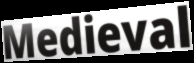
Medieval